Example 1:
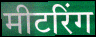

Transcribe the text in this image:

मीटरिंग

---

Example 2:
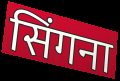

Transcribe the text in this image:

सिंगना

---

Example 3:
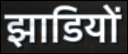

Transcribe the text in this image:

झाडियों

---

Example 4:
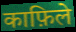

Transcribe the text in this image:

काफ़िले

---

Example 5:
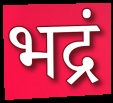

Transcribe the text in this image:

भद्रं